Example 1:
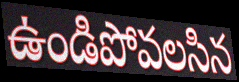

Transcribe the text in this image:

ఉండిపోవలసిన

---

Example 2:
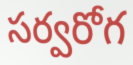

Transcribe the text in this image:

సర్వరోగ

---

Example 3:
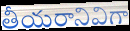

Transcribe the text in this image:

తీయరానివిగా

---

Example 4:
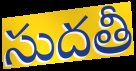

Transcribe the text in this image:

సుదతీ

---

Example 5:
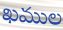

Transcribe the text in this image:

ఖముల